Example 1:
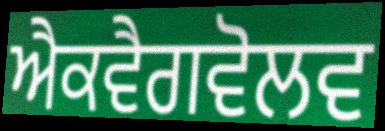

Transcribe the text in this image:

ਐਕਵੈਗਵੋਲਵ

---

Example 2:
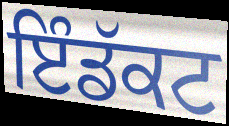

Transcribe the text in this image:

ਇੰਡੱਕਟ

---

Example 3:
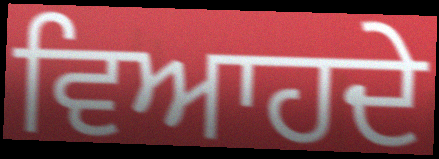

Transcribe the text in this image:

ਵਿਆਹਦੇ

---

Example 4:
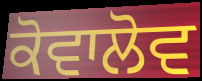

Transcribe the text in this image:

ਕੋਵਾਲੋਵ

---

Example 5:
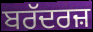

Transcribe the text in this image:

ਬਰੱਦਰਜ਼